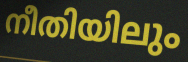
നീതിയിലും